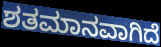
ಶತಮಾನವಾಗಿದೆ